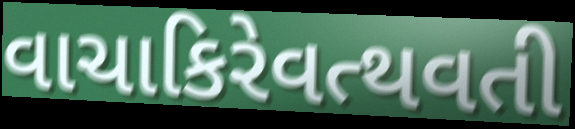
વાચાકિરેવત્થવતી